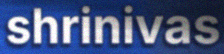
shrinivas